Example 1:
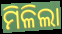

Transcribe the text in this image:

ମିଳିଲା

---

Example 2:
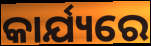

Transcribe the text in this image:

କାର୍ଯ୍ୟରେ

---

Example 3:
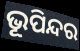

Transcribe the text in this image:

ଭୂପିନ୍ଦର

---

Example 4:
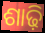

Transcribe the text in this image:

ଶାଢ଼ି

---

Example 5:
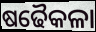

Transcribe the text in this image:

ଷଢୈକଳା